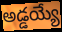
అడ్డయ్యే